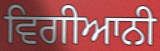
ਵਿਗੀਆਨੀ